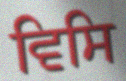
ਵਿਸਿ